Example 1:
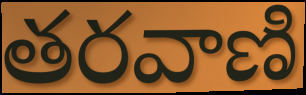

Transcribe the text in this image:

తరవాణి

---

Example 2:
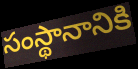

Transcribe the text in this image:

సంస్థానానికి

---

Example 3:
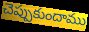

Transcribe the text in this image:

చెప్పుకుందాము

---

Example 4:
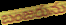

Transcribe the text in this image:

బంజరును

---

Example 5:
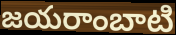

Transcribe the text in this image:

జయరాంబాటి